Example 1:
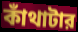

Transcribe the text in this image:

কাঁথাটার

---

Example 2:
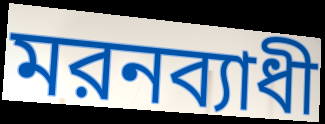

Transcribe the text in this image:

মরনব্যাধী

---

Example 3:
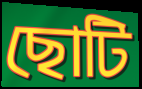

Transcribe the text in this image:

ছোটি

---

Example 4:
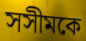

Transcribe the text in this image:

সসীমকে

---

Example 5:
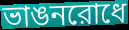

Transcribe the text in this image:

ভাঙনরোধে